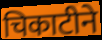
चिकाटीने